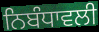
ਨਿਬੰਧਾਵਲੀ